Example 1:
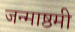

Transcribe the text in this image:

जन्माष्ठमी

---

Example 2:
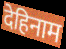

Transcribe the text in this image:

देहिनाम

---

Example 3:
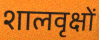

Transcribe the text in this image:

शालवृक्षों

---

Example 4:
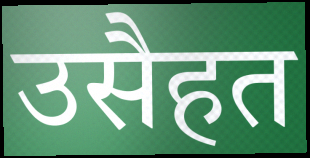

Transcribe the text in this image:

उसैहत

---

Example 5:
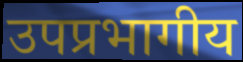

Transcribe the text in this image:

उपप्रभागीय